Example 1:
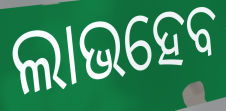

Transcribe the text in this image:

ଲାଭହେବ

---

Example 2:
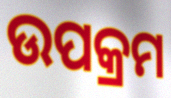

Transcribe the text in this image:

ଉପକ୍ରମ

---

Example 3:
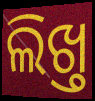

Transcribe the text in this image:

ଲିଖ୍ତ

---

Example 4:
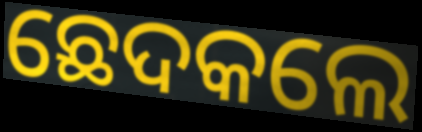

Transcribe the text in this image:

ଛେଦକଲେ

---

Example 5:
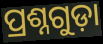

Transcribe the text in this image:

ପ୍ରଶ୍ନଗୁଡ଼ା